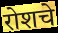
रोशचे